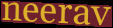
neerav